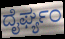
ದೈರ್ಘ್ಯಂ